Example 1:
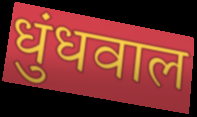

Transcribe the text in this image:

धुंधवाल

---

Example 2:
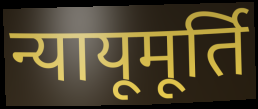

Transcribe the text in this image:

न्यायूमूर्ति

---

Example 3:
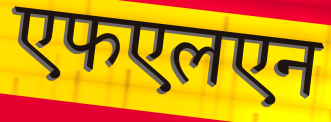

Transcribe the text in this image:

एफएलएन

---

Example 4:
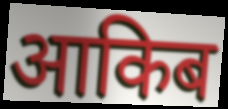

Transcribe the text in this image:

आकिब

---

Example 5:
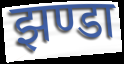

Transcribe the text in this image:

झण्डा